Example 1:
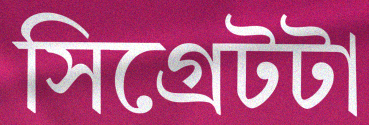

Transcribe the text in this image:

সিগ্রেটটা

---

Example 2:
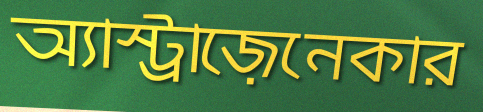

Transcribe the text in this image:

অ্যাস্ট্রাজ়েনেকার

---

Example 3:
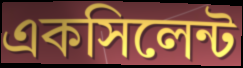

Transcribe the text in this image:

একসিলেন্ট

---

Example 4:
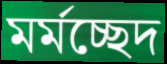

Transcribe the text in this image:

মর্মচ্ছেদ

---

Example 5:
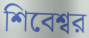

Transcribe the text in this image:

শিবেশ্বর